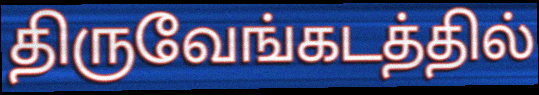
திருவேங்கடத்தில்